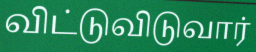
விட்டுவிடுவார்